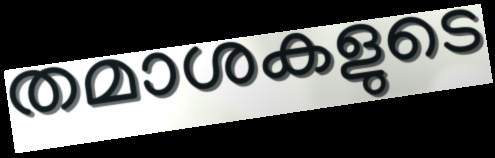
തമാശകളുടെ